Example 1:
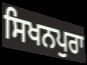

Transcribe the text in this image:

ਸਿਖਨਪੁਰਾ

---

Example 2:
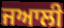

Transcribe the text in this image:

ਜਆਲੀ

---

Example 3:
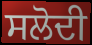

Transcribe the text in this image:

ਸਲੋਦੀ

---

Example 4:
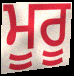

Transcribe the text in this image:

ਮੂਰੂ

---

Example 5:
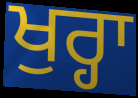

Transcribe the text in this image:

ਖੁਰ੍ਹਾ